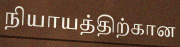
நியாயத்திற்கான